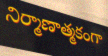
నిర్మాణాత్మకంగా